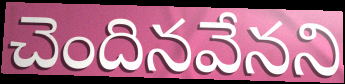
చెందినవేనని